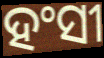
ହଂସୀ